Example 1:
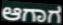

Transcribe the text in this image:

ಆಗಾಗ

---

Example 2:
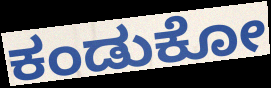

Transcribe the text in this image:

ಕಂಡುಕೋ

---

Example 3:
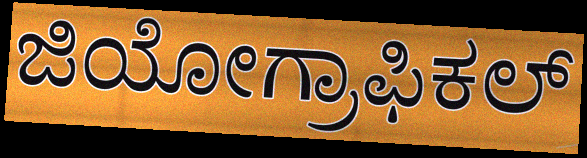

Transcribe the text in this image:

ಜಿಯೋಗ್ರಾಫಿಕಲ್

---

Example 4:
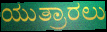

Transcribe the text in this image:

ಯುತ್ರಾರಲು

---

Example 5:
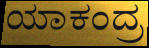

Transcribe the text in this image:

ಯಾಕಂದ್ರ